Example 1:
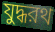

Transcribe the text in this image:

যুদ্ধরথ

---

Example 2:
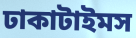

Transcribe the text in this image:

ঢাকাটাইমস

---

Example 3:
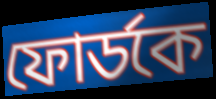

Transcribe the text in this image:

ফোর্ডকে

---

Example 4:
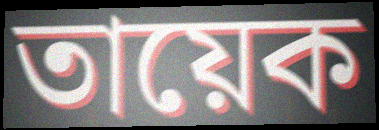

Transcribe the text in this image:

তায়েক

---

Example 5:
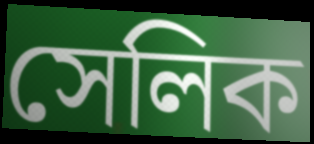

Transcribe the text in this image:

সেলিক